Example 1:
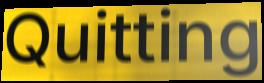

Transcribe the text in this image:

Quitting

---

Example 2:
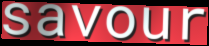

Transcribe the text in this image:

savour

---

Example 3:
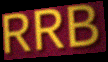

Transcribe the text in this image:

RRB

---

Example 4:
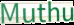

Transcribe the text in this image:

Muthu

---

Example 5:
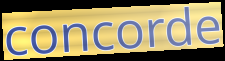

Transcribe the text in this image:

concorde